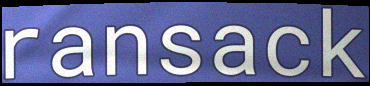
ransack